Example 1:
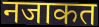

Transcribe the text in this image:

नजाकत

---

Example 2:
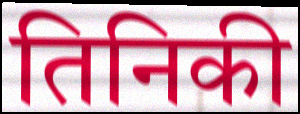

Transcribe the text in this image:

तिनिकी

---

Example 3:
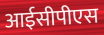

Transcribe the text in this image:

आईसीपीएस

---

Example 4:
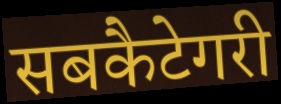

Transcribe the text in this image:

सबकैटेगरी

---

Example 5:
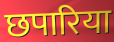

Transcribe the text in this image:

छपारिया